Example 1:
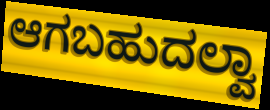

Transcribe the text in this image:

ಆಗಬಹುದಲ್ವಾ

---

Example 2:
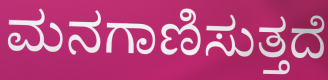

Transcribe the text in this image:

ಮನಗಾಣಿಸುತ್ತದೆ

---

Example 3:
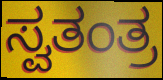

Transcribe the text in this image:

ಸ್ವತಂತ್ರ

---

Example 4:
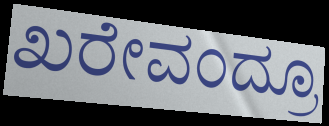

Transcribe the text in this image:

ಖರೇವಂದ್ರೂ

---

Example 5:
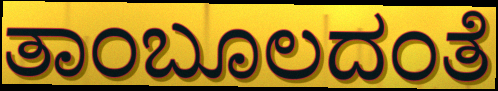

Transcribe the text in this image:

ತಾಂಬೂಲದಂತೆ